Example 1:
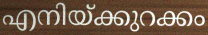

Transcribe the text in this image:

എനിയ്ക്കുറക്കം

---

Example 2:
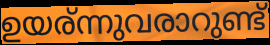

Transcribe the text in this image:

ഉയര്ന്നുവരാറുണ്ട്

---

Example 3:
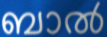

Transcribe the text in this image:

ബാൽ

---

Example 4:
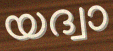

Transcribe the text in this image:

യദ്വാ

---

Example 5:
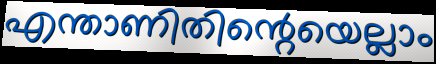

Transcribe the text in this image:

എന്താണിതിന്റെയെല്ലാം